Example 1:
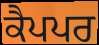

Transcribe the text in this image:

ਕੈਪਪਰ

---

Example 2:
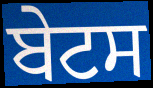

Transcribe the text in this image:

ਬੇਟਸ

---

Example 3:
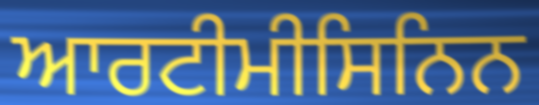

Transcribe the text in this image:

ਆਰਟੀਮੀਸਿਨਿਨ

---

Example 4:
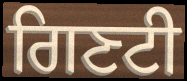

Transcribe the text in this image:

ਗਿਣਟੀ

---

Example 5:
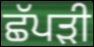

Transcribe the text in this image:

ਛੱਪੜੀ